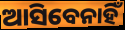
ଆସିବେନାହିଁ